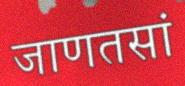
जाणतसां